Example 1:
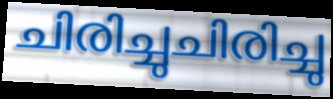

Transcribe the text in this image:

ചിരിച്ചുചിരിച്ചു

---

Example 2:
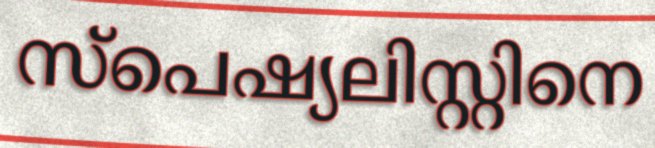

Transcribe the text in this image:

സ്പെഷ്യലിസ്റ്റിനെ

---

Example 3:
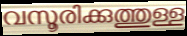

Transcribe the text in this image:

വസൂരിക്കുത്തുള്ള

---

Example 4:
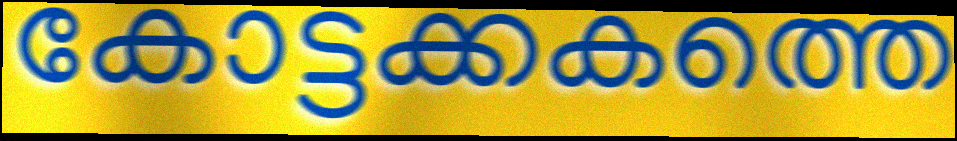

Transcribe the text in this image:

കോട്ടക്കകത്തെ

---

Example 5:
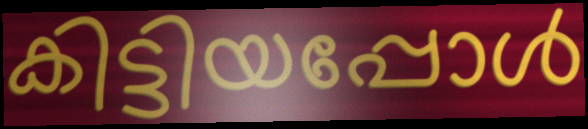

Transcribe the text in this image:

കിട്ടിയപ്പോൾ